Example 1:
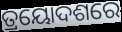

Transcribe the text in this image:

ତ୍ରୟୋଦଶରେ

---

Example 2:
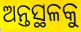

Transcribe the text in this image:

ଅନ୍ତସ୍ଥଳକୁ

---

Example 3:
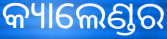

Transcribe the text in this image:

କ୍ୟାଲେଣ୍ଡର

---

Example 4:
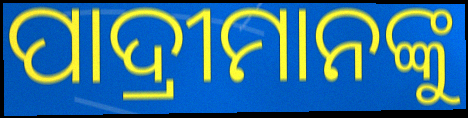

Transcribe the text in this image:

ପାଦ୍ରୀମାନଙ୍କୁ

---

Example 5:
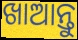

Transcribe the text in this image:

ଖାଆନ୍ତୁ